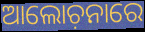
ଆଲୋଚ଼ନାରେ